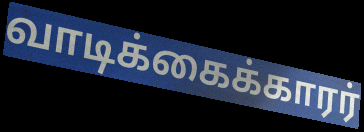
வாடிக்கைக்காரர்